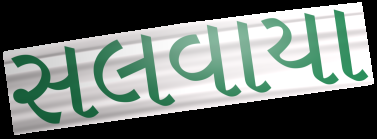
સલવાયા